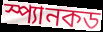
স্প্যানকড